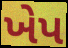
ખેપ